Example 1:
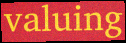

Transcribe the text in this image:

valuing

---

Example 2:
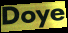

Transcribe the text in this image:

Doye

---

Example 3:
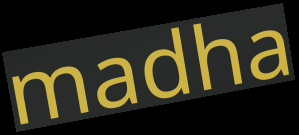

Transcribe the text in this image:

madha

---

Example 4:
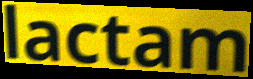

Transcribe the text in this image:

lactam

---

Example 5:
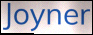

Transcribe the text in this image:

Joyner